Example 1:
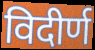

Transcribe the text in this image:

विदीर्ण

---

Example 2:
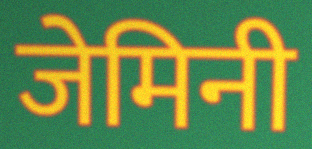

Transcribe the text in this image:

जेमिनी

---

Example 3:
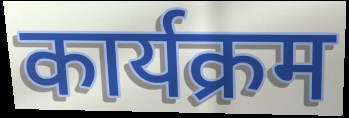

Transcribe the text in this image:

कार्यक्रम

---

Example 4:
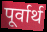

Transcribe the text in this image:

पूर्वार्थ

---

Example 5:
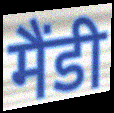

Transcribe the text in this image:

मैंडी